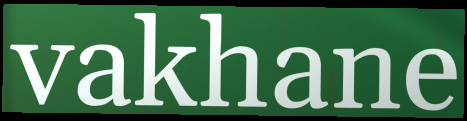
vakhane